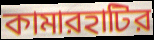
কামারহাটির